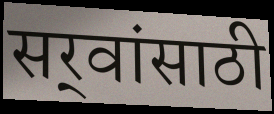
सर्वांसाठी